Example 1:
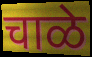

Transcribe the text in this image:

चाळे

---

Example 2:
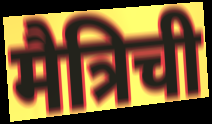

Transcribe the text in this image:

मैत्रिची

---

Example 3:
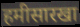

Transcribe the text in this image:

हमीसारखा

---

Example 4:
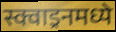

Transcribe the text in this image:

स्क्वाड्रनमध्ये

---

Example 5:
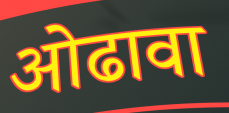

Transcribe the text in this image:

ओढावा